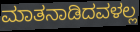
ಮಾತನಾಡಿದವಳಲ್ಲ